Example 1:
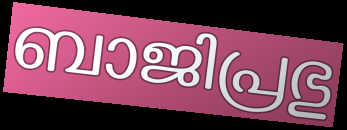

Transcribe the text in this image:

ബാജിപ്രഭു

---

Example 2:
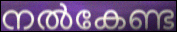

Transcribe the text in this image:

നൽകേണ്ട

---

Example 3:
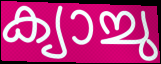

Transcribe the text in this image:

ക്യാച്ചു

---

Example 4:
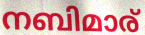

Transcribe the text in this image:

നബിമാര്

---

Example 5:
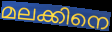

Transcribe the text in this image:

മലക്കിനെ